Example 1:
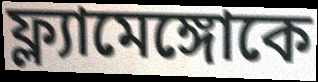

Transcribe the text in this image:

ফ্ল্যামেঙ্গোকে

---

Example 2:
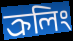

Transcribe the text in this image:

ক্রলিং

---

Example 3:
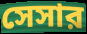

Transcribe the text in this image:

সেসার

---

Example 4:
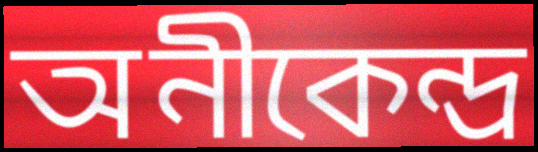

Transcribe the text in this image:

অনীকেন্দ্র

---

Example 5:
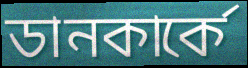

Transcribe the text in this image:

ডানকার্কে